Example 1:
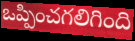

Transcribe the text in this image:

ఒప్పించగలిగింది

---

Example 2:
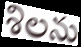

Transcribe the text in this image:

శిలను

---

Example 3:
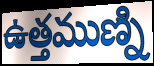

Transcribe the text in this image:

ఉత్తముణ్ని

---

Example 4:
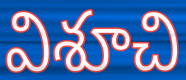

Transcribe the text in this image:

విశూచి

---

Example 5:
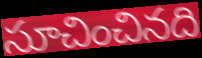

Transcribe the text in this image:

సూచించినది